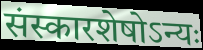
संस्कारशेषोऽन्यः